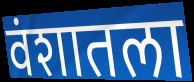
वंशातला